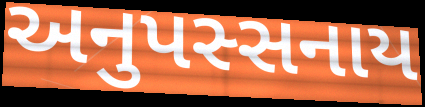
અનુપસ્સનાય